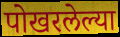
पोखरलेल्या